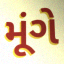
મૂંગે